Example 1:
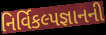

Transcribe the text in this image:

નિર્વિકલ્પજ્ઞાનની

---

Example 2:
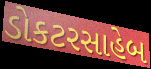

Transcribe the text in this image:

ડોકટરસાહેબ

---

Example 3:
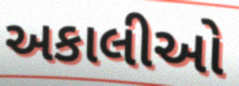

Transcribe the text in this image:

અકાલીઓ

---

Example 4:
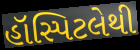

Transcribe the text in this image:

હૉસ્પિટલેથી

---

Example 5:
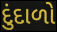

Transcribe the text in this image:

દુંદાળો